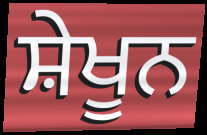
ਸ਼ੇਖੂਨ